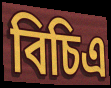
বিচিএ